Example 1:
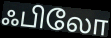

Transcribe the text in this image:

ஃபிலோ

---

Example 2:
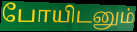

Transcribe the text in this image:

போயிடனும்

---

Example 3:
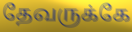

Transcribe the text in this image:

தேவருக்கே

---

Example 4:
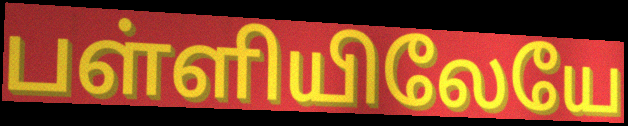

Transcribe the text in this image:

பள்ளியிலேயே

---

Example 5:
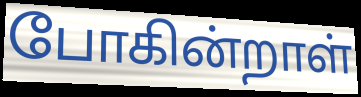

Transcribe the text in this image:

போகின்றாள்